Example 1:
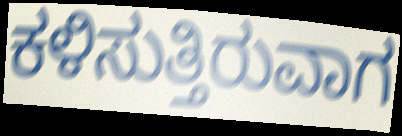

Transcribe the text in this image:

ಕಳಿಸುತ್ತಿರುವಾಗ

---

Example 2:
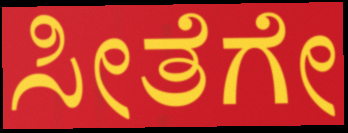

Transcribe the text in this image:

ಸೀತೆಗೇ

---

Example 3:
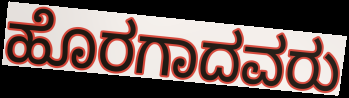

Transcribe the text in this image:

ಹೊರಗಾದವರು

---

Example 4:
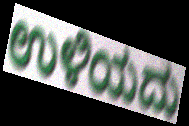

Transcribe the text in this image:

ಉಳಿಯದು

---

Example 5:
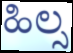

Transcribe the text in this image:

ಹಿಲ್ಸ